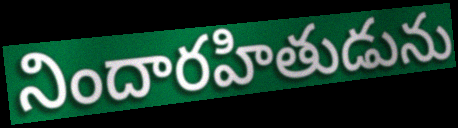
నిందారహితుడును